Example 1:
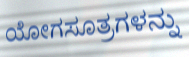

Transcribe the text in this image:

ಯೋಗಸೂತ್ರಗಳನ್ನು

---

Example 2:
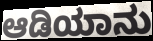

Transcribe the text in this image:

ಆಡಿಯಾನು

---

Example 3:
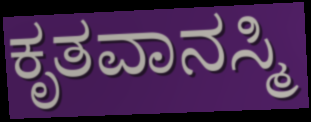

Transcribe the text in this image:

ಕೃತವಾನಸ್ಮಿ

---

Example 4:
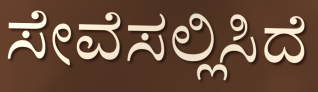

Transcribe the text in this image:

ಸೇವೆಸಲ್ಲಿಸಿದೆ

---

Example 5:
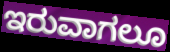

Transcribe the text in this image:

ಇರುವಾಗಲೂ